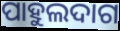
ପାହୁଲଦାଗ